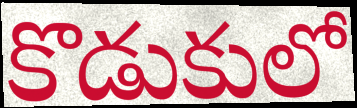
కొడుకులో